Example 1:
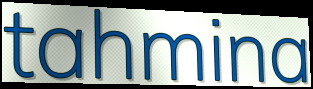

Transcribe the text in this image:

tahmina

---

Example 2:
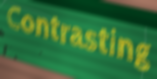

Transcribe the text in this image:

Contrasting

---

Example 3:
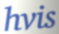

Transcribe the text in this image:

hvis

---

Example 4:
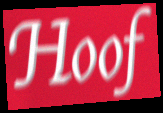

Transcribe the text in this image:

Hoof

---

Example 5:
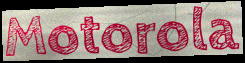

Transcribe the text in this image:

Motorola